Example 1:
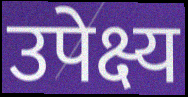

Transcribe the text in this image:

उपेक्ष्य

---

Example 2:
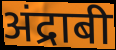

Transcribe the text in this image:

अंद्राबी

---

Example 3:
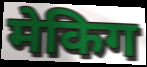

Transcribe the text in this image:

मेकिग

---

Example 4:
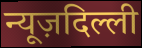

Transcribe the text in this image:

न्यूज़दिल्ली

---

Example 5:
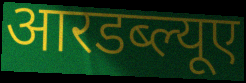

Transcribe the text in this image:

आरडब्ल्यूए